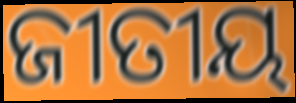
ଜୀତୀୟ